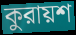
কুরায়শ